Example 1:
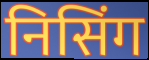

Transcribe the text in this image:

निसिंग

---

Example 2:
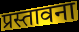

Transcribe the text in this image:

प्रस्‍तावना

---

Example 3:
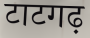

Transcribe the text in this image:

टाटगढ़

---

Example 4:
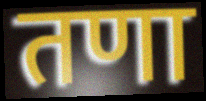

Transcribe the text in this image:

तणा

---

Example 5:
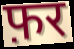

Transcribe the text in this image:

फ़र